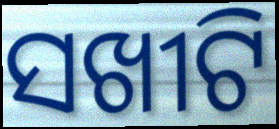
ସଖୀଟି